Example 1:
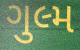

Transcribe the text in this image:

ગુલ્મ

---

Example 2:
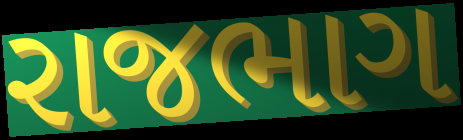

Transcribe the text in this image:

રાજભાગ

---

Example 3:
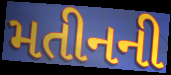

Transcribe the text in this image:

મતીનની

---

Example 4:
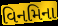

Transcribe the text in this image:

વિનમિના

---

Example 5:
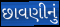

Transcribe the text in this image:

છાવણીનું